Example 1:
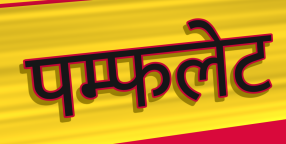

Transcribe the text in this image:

पम्फलेट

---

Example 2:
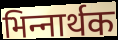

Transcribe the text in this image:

भिन्नार्थक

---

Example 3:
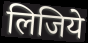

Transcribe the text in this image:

लिजिये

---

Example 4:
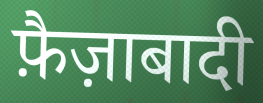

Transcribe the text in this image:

फ़ैज़ाबादी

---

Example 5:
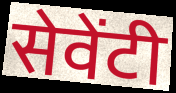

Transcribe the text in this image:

सेवेंटी